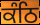
ਕੰਠਿ